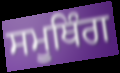
ਸਮੂਥਿੰਗ